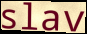
slav